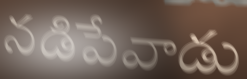
నడిపేవాడు